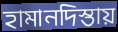
হামানদিস্তায়